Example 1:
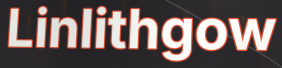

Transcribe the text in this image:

Linlithgow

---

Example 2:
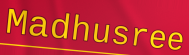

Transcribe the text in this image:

Madhusree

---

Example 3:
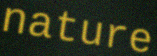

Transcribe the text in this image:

nature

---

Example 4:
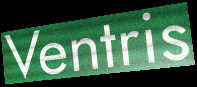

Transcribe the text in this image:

Ventris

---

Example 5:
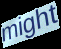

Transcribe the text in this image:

might